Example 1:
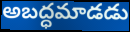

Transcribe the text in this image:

అబద్ధమాడడు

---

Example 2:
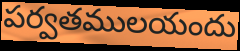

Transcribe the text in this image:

పర్వతములయందు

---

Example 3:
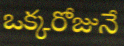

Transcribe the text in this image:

ఒక్కరోజునే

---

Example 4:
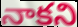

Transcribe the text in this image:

నాకని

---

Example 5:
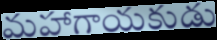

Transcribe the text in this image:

మహాగాయకుడు